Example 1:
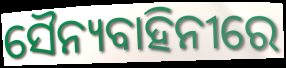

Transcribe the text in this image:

ସୈନ୍ଯବାହିନୀରେ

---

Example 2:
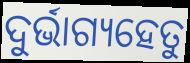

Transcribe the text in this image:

ଦୁର୍ଭାଗ୍ୟହେତୁ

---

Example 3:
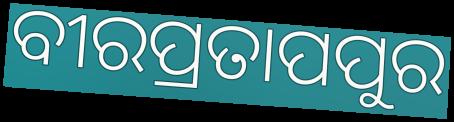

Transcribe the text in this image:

ବୀରପ୍ରତାପପୁର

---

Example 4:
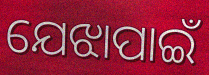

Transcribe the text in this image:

ଯେଝାପାଇଁ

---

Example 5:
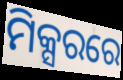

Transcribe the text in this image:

ମିକ୍ସରରେ